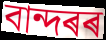
বান্দৰৰ